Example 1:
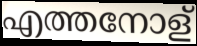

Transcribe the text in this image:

എത്തനോള്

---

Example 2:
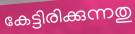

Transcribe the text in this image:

കേട്ടിരിക്കുന്നതു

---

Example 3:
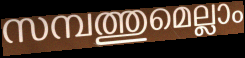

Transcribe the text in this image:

സമ്പത്തുമെല്ലാം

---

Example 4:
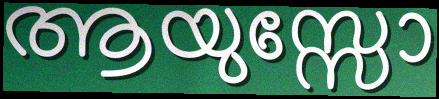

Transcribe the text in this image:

ആയുസ്സോ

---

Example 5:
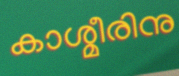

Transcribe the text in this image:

കാശ്മീരിനു